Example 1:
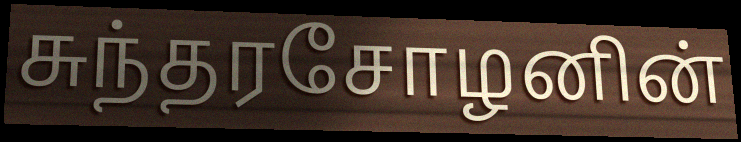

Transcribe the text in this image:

சுந்தரசோழனின்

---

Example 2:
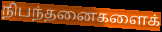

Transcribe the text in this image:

நிபந்தனைகளைக்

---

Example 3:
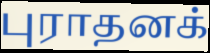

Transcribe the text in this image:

புராதனக்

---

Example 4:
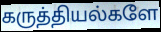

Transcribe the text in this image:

கருத்தியல்களே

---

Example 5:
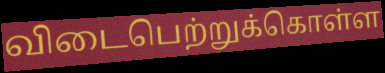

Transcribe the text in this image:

விடைபெற்றுக்கொள்ள